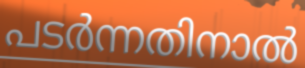
പടർന്നതിനാൽ